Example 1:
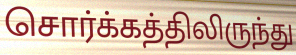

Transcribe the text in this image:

சொர்க்கத்திலிருந்து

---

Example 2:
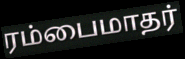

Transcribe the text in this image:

ரம்பைமாதர்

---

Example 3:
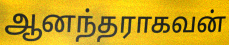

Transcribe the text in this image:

ஆனந்தராகவன்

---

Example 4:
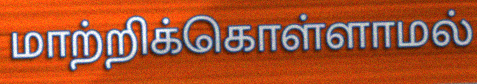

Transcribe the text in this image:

மாற்றிக்கொள்ளாமல்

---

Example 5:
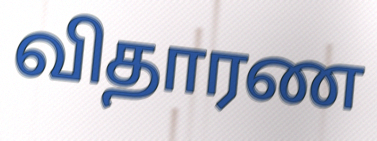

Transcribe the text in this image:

விதாரண